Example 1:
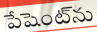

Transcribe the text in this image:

పేషెంట్‌ను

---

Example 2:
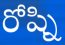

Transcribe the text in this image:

రోష్ని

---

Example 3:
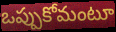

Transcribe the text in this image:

ఒప్పుకోమంటూ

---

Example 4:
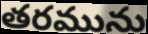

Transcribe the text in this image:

తరమును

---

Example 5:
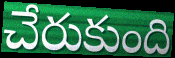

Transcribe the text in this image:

చేరుకుంది